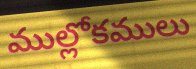
ముల్లోకములు